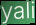
yali